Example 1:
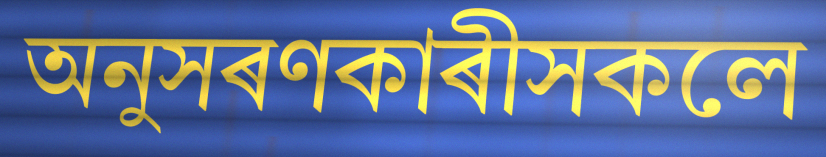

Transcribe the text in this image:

অনুসৰণকাৰীসকলে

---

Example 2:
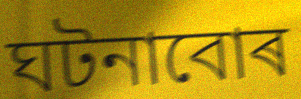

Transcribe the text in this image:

ঘটনাবোৰ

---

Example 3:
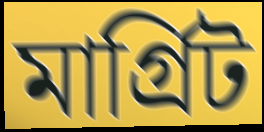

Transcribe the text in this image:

মাৰ্গ্ৰিট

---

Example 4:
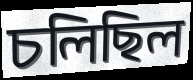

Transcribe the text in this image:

চলিছিল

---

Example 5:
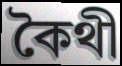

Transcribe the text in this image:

কৈথী